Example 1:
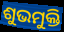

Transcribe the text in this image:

ଶୁଭମୁକ୍ତି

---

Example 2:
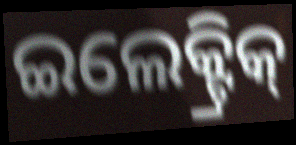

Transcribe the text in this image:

ଇଲେକ୍ଟ୍ରିକ୍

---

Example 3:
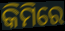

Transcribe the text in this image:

କିମିରେ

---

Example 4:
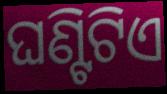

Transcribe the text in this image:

ଘଣ୍ଟିଟିଏ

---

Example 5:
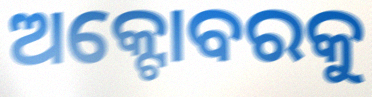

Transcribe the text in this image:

ଅକ୍ଟୋବରକୁ